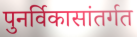
पुनर्विकासांतर्गत